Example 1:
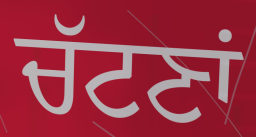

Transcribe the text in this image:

ਚੱਟਣਾਂ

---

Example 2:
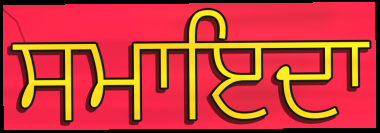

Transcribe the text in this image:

ਸਮਾਇਦਾ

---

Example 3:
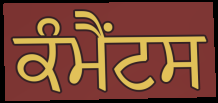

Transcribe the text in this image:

ਕੰਮੈਂਟਸ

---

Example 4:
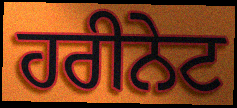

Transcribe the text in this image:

ਹਰੀਨੇਟ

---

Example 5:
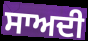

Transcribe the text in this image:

ਸਾਅਦੀ